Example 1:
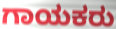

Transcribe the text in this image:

ಗಾಯಕರು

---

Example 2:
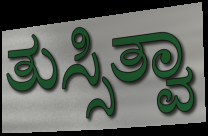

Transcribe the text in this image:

ತುಸ್ಸಿತ್ವಾ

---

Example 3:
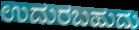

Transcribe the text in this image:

ಉದುರಬಹುದು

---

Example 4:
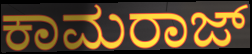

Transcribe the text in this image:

ಕಾಮರಾಜ್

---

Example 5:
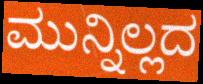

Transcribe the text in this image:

ಮುನ್ನಿಲ್ಲದ